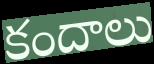
కందాలు